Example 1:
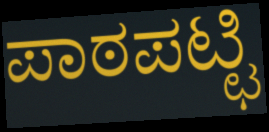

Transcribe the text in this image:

ಪಾಠಪಟ್ಟಿ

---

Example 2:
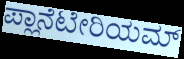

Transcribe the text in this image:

ಪ್ಲಾನೆಟೇರಿಯಮ್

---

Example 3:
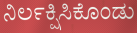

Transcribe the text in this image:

ನಿರ್ಲಕ್ಷಿಸಿಕೊಂಡು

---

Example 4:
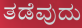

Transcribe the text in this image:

ತಡೆವುದು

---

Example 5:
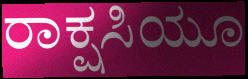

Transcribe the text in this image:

ರಾಕ್ಷಸಿಯೂ